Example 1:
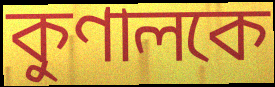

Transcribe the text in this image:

কুণালকে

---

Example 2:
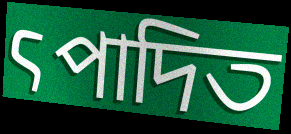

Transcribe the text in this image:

ৎপাদিত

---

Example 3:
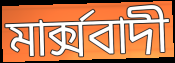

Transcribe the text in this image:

মার্ক্সবাদী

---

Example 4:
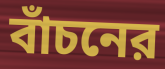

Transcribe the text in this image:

বাঁচনের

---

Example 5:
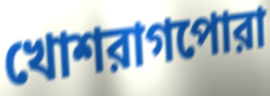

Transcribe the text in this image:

খোশরাগপোরা